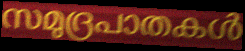
സമുദ്രപാതകൾ